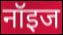
नॉइज